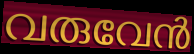
വരുവേൻ